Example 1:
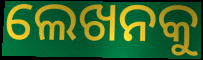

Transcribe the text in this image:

ଲେଖନକୁ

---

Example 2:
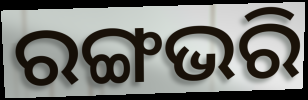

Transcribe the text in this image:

ରଙ୍ଗଭରି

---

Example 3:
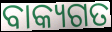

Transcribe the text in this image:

ବାକ୍ୟଗତ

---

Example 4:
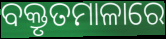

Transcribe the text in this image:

ବକ୍ତୃତମାଳାରେ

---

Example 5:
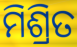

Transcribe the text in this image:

ମିଶ୍ରିତ